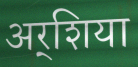
अर्शिया